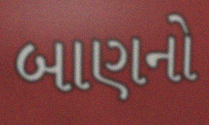
બાણનો